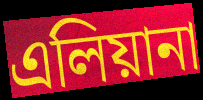
এলিয়ানা